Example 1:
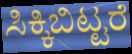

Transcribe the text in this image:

ಸಿಕ್ಕಿಬಿಟ್ಟರೆ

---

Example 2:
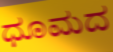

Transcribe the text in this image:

ಧೂಮದ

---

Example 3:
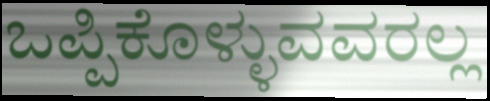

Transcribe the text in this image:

ಒಪ್ಪಿಕೊಳ್ಳುವವರಲ್ಲ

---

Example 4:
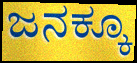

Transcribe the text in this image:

ಜನಕ್ಕೂ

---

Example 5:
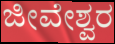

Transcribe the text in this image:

ಜೀವೇಶ್ವರ